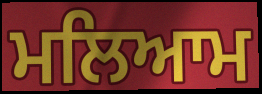
ਮਲਿਆਮ